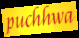
puchhwa